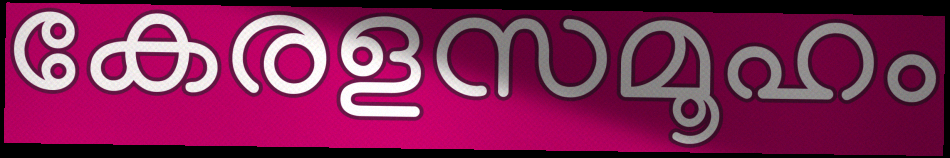
കേരളസമൂഹം